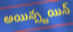
అయిన్స్టయిన్